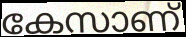
കേസാണ്